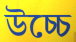
উচ্চে